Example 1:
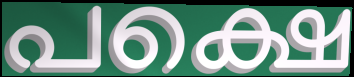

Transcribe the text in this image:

പക്ഷെ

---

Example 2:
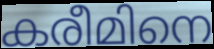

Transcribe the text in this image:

കരീമിനെ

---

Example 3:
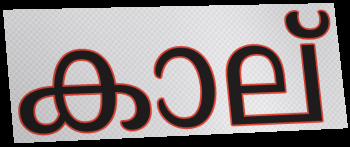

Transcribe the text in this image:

കാല്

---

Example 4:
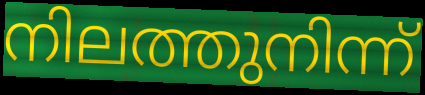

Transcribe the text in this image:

നിലത്തുനിന്ന്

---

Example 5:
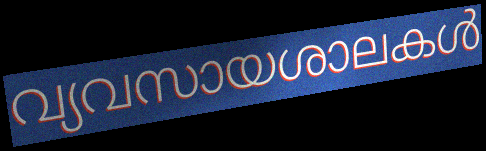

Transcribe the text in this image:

വ്യവസായശാലകൾ